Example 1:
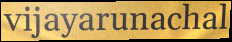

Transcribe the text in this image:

vijayarunachal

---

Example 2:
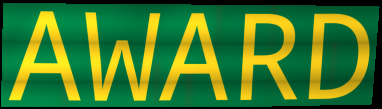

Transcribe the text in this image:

AWARD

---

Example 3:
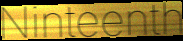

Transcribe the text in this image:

Ninteenth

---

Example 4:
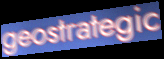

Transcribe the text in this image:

geostrategic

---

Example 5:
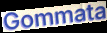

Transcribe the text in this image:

Gommata